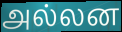
அல்லன